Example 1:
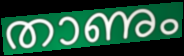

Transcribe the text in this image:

താണും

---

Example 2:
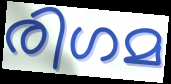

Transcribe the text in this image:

രിഗമ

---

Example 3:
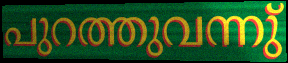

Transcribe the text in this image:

പുറത്തുവന്നു്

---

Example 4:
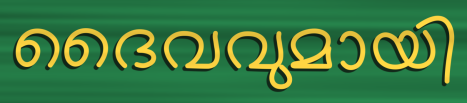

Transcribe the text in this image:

ദൈവവുമായി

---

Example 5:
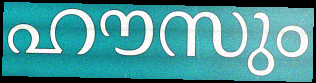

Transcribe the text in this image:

ഹൗസും